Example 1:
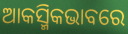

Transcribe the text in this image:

ଆକସ୍ମିକଭାବରେ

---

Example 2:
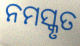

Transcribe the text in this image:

ନମସ୍କୃତ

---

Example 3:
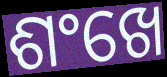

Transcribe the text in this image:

ଶଂଖେ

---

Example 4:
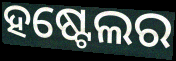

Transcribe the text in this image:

ହଷ୍ଟେଲର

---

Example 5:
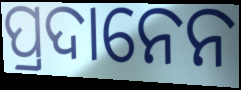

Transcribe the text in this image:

ପ୍ରଦାନେନ